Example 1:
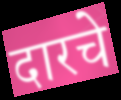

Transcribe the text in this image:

दारचे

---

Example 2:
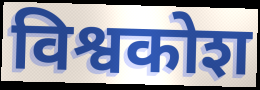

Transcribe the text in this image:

विश्वकोश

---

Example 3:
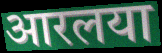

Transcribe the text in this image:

आरलया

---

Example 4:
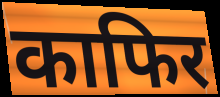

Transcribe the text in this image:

काफिर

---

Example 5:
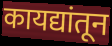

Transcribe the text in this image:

कायद्यांतून